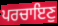
ਪਰਚਾਇਣੁ